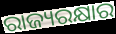
ରାଜ୍ୟରକ୍ଷାର